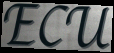
ECU